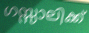
ഗസ്സാലിക്ക്